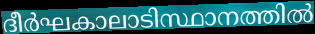
ദീർഘകാലാടിസ്ഥാനത്തിൽ